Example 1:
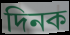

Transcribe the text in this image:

দিনক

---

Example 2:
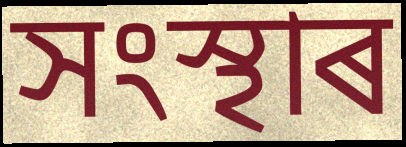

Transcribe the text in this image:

সংস্থাৰ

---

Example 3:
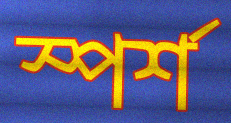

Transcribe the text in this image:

স্পৰ্শ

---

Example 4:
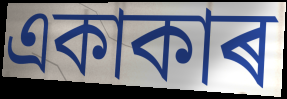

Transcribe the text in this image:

একাকাৰ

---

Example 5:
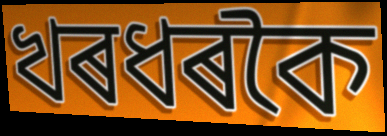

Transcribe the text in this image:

খৰধৰকৈ